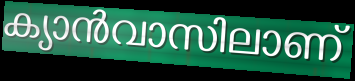
ക്യാൻവാസിലാണ്